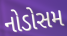
નોડોસમ